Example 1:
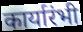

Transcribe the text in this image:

कार्यारंभी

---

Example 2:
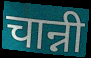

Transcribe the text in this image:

चान्नी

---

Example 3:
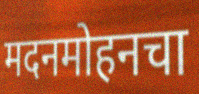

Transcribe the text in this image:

मदनमोहनचा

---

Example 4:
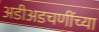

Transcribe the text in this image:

अडीअडचणींच्या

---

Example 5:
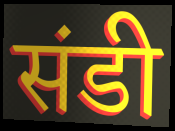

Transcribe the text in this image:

संडी